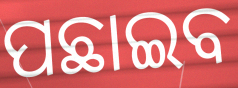
ପଛାଇବ